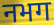
नभग